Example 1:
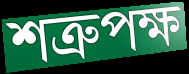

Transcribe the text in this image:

শত্রুপক্ষ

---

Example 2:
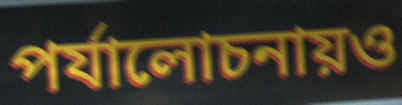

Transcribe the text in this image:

পর্যালোচনায়ও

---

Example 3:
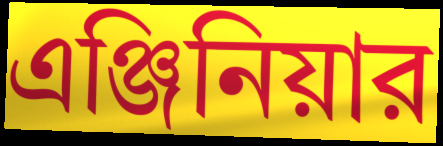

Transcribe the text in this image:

এঞ্জিনিয়ার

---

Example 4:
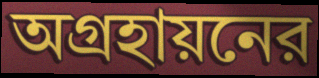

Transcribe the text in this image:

অগ্রহায়নের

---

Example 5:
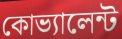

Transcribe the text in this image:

কোভ্যালেন্ট